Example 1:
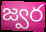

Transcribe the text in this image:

జ్వర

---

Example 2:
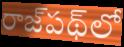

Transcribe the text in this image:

రాజ్‌పథ్‌లో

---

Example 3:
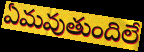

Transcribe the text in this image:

ఏమవుతుందిలే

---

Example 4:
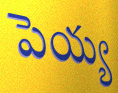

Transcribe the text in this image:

పెయ్య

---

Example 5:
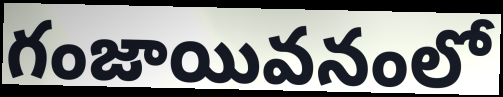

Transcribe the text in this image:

గంజాయివనంలో